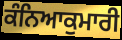
ਕੰਨਿਆਕੁਮਾਰੀ